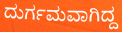
ದುರ್ಗಮವಾಗಿದ್ದ